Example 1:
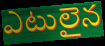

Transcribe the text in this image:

ఎటులైన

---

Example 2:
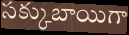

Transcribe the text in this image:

సక్కుబాయిగా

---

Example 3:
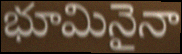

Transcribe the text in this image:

భూమినైనా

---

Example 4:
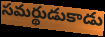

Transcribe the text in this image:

సమర్థుడుకాడు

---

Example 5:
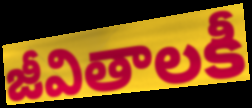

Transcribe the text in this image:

జీవితాలకీ